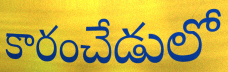
కారంచేడులో